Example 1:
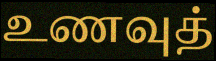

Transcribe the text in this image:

உணவுத்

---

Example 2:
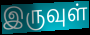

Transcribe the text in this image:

இருவுள்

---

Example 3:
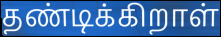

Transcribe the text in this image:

தண்டிக்கிறாள்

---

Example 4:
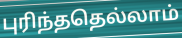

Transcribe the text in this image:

புரிந்ததெல்லாம்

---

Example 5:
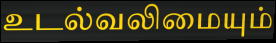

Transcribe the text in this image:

உடல்வலிமையும்